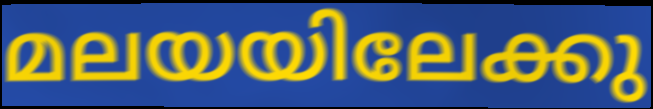
മലയയിലേക്കു